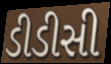
ડીડીસી